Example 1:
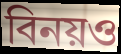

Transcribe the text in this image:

বিনয়ও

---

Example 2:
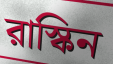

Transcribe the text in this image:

রাস্কিন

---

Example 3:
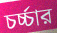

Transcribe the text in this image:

চর্চ্চার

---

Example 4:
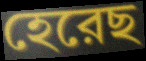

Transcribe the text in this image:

হেরেছ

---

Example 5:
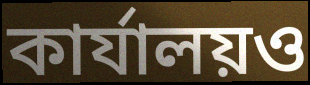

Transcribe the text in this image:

কার্যালয়ও